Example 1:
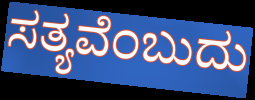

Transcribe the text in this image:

ಸತ್ಯವೆಂಬುದು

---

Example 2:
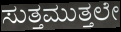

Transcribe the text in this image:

ಸುತ್ತಮುತ್ತಲೇ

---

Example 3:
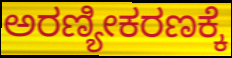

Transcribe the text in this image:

ಅರಣ್ಯೀಕರಣಕ್ಕೆ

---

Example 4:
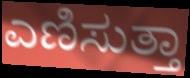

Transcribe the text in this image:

ಎಣಿಸುತ್ತಾ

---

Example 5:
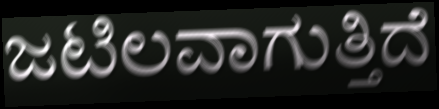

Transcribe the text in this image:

ಜಟಿಲವಾಗುತ್ತಿದೆ